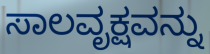
ಸಾಲವೃಕ್ಷವನ್ನು